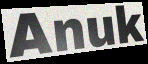
Anuk